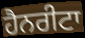
ਹੈਨਰੀਟਾ